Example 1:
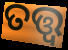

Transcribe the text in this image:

ତତ୍ତ୍ବ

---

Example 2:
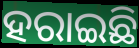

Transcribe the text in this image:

ହରାଇଛି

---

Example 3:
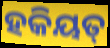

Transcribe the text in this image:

ହକିୟତ୍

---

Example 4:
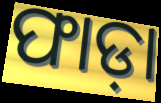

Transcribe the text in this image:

ଫାଡ଼ା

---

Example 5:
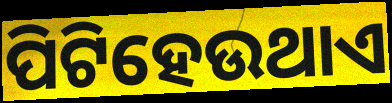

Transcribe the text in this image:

ପିଟିହେଉଥାଏ